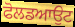
ਫੋਲਡਆਉਟ